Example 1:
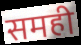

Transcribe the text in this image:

समही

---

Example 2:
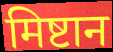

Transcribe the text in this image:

मिष्टान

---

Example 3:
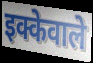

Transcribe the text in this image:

इक्केवाले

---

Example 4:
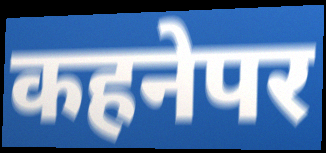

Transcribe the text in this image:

कहनेपर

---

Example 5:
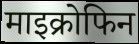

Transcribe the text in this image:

माइक्रोफिन